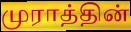
முராத்தின்